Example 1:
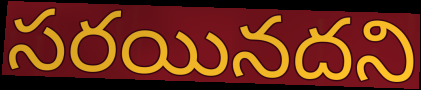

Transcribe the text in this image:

సరయినదని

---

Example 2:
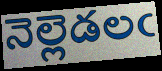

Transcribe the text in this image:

నెల్లెడలఁ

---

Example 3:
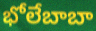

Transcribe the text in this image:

భోలేబాబా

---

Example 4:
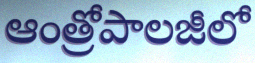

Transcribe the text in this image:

ఆంత్రోపాలజీలో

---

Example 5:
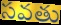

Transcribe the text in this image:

సవతు